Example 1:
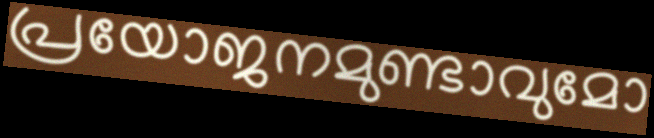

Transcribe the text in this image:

പ്രയോജനമുണ്ടാവുമോ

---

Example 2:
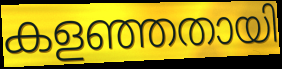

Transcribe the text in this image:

കളഞ്ഞതായി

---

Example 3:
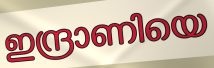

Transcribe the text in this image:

ഇന്ദ്രാണിയെ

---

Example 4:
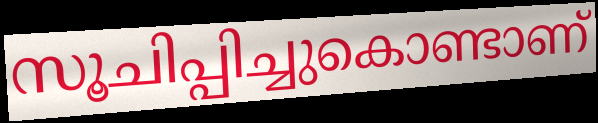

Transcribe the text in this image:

സൂചിപ്പിച്ചുകൊണ്ടാണ്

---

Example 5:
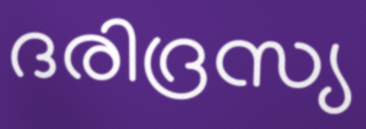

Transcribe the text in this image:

ദരിദ്രസ്യ